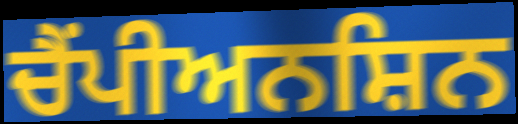
ਚੈਂਪੀਅਨਸ਼ਿਨ